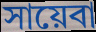
সায়েবা